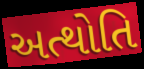
અત્થોતિ